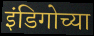
इंडिगोच्या